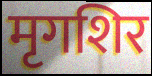
मृगशिर